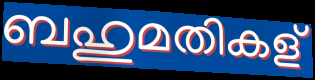
ബഹുമതികള്